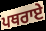
ਪਥਰਾਏ